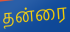
தன்ரை